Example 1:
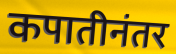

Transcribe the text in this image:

कपातीनंतर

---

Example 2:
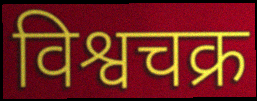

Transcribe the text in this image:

विश्वचक्र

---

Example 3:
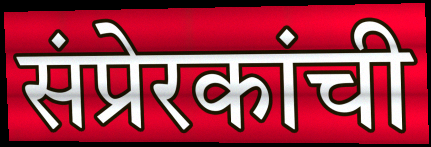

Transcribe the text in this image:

संप्रेरकांची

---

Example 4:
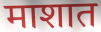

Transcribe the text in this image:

माशात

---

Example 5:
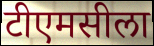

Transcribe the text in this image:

टीएमसीला